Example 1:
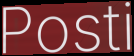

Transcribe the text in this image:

Posti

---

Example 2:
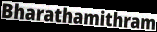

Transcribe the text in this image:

Bharathamithram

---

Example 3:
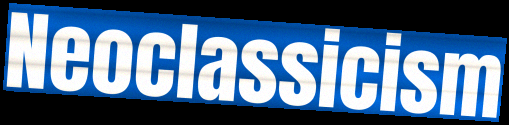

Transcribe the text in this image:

Neoclassicism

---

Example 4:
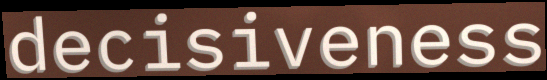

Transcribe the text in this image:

decisiveness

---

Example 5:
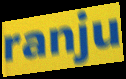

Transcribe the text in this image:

ranju